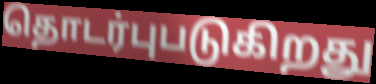
தொடர்புபடுகிறது